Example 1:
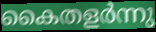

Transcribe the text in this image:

കൈതളർന്നു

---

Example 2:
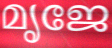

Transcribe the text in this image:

മൃജേ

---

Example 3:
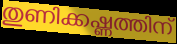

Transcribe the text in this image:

തുണിക്കഷ്ണത്തിന്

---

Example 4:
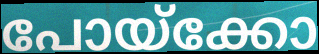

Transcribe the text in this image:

പോയ്ക്കോ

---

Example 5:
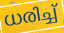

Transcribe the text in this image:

ധരിച്ച്